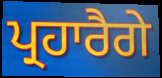
ਪ੍ਰਹਾਰੈਗੇ